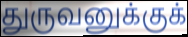
துருவனுக்குக்